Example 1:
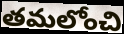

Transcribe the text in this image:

తమలోంచి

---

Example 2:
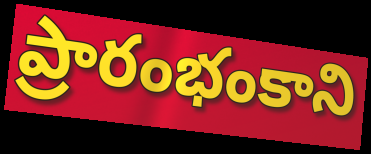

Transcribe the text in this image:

ప్రారంభంకాని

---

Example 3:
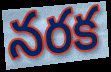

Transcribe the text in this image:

నరక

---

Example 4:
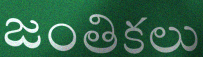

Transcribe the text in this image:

జంతికలు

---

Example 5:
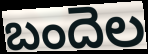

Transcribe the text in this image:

బందెల